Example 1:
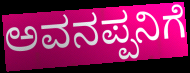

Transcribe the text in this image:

ಅವನಪ್ಪನಿಗೆ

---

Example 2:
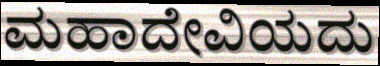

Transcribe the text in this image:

ಮಹಾದೇವಿಯದು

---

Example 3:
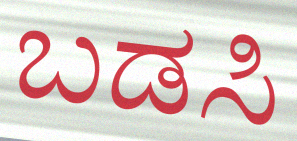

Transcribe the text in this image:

ಬಡಸಿ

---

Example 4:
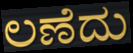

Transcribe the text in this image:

ಲಣೆದು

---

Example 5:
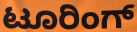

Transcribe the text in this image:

ಟೂರಿಂಗ್